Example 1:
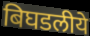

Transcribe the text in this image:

बिघडलीये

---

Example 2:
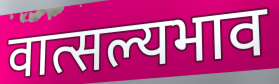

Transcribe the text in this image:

वात्सल्यभाव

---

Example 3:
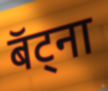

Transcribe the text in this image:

बॅट्ना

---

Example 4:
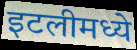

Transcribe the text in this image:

इटलीमध्ये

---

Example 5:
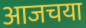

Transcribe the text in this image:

आजचया